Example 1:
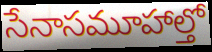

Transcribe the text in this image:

సేనాసమూహాల్తో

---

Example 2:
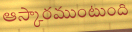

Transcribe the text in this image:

ఆస్కారముంటుంది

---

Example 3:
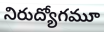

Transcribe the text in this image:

నిరుద్యోగమూ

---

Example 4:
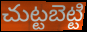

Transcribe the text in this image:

చుట్టబెట్టి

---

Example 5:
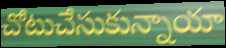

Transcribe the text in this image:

చోటుచేసుకున్నాయా